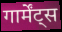
गार्मेंट्स